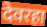
देवरहा